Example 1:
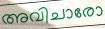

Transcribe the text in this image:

അവിചാരോ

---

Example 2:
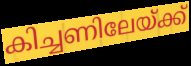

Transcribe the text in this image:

കിച്ചണിലേയ്ക്ക്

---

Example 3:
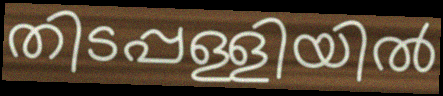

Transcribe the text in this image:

തിടപ്പള്ളിയിൽ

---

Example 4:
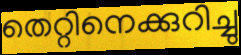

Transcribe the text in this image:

തെറ്റിനെക്കുറിച്ചു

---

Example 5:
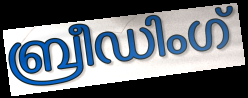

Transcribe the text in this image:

ബ്രീഡിംഗ്